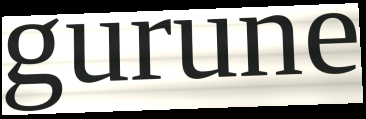
gurune